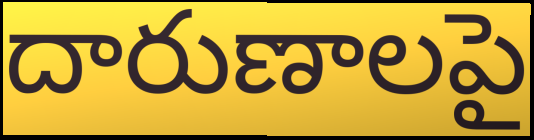
దారుణాలపై